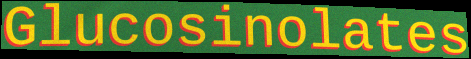
Glucosinolates